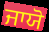
ਜਾਯੋ